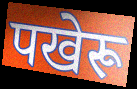
पखेरू